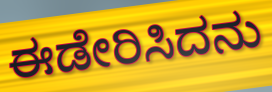
ಈಡೇರಿಸಿದನು